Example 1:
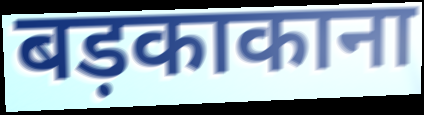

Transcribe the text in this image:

बड़काकाना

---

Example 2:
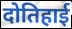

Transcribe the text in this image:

दोतिहाई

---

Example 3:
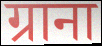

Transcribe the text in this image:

ग्राना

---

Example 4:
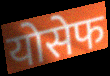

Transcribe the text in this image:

योसेफ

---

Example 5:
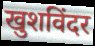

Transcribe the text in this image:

खुशविंदर